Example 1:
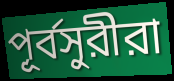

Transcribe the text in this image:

পূর্বসুরীরা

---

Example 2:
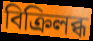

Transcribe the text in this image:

বিক্রিলব্ধ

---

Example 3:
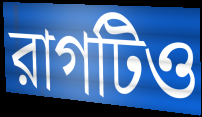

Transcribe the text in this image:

রাগটিও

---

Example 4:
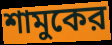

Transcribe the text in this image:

শামুকের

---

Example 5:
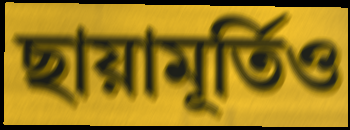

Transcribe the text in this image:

ছায়ামূর্তিও